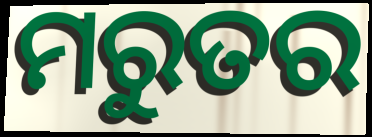
ମରୁତର